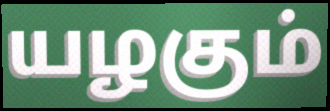
யழகும்